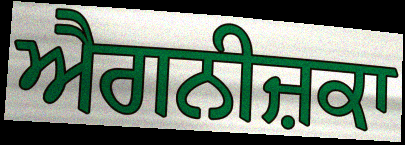
ਐਗਨੀਜ਼ਕਾ